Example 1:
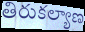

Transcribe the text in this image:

తిరుకల్యాణ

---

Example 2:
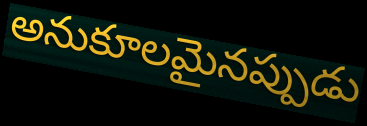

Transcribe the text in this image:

అనుకూలమైనప్పుడు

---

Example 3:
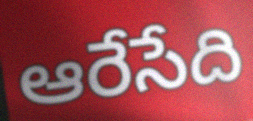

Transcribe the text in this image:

ఆరేసేది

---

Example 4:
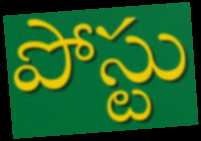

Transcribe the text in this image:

పోస్టు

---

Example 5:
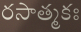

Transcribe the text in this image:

రసాత్మకః